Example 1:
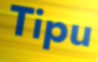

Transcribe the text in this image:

Tipu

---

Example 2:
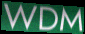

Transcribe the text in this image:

WDM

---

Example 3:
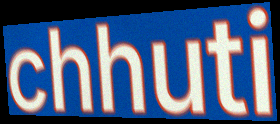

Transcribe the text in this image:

chhuti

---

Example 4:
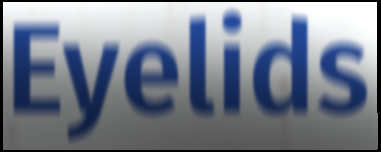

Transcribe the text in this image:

Eyelids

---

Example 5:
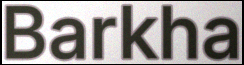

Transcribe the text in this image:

Barkha